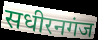
सधीरनगंज